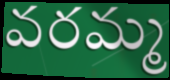
వరమ్మ